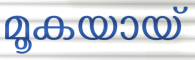
മൂകയായ്